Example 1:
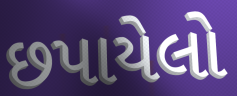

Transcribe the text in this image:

છપાયેલો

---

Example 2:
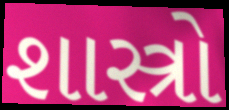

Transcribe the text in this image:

શાસ્ત્રો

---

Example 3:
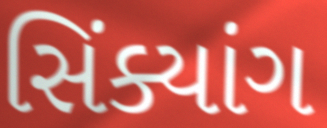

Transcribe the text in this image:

સિંક્યાંગ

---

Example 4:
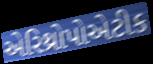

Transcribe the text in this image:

એરિથ્રોપોએટીક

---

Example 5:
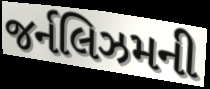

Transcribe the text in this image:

જર્નલિઝમની